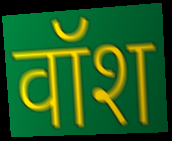
वॉश